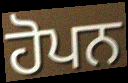
ਹੋਪਨ